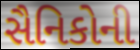
સૈનિકોની